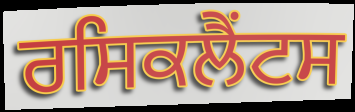
ਰਸਿਕਲੈਂਟਸ